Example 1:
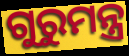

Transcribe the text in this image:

ଗୁରୁମନ୍ତ୍ର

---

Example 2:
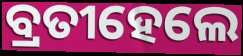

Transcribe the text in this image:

ବ୍ରତୀହେଲେ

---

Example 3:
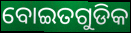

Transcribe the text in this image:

ବୋଇତଗୁଡିକ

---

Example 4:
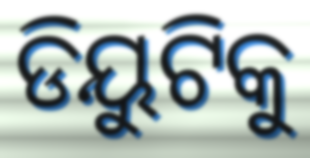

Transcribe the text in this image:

ଡିୟୁଟିକୁ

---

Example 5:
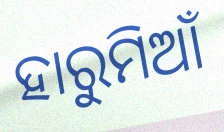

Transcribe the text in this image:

ହାରୁମିଆଁ